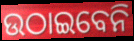
ଉଠାଇବେନି